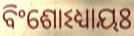
ବିଂଶୋଽଧ୍ୟାୟଃ